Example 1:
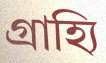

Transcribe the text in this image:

গ্রাহ্যি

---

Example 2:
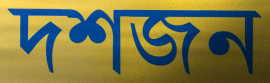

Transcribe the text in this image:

দশজন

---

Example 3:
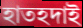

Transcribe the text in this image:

হাতহদাই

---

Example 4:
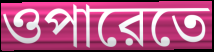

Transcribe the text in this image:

ওপারেতে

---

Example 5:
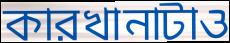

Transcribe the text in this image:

কারখানাটাও